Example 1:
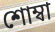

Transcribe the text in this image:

শোম্বা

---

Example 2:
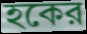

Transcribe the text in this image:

হকের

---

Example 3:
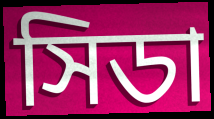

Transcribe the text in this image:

সিডা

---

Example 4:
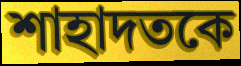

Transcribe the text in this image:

শাহাদতকে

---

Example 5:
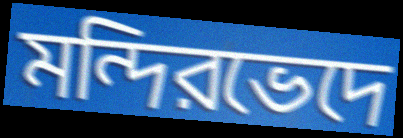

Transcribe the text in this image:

মন্দিরভেদে